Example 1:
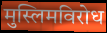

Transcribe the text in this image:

मुस्लिमविरोध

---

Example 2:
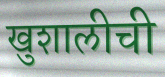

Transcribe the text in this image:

खुशालीची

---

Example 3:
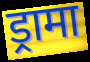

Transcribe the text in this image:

ड्रामा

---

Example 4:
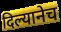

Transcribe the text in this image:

दिल्यानेच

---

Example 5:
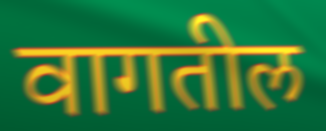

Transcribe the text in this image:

वागतील